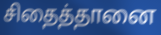
சிதைத்தானை